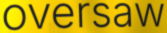
oversaw